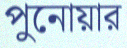
পুনোয়ার